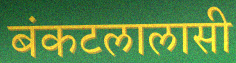
बंकटलालासी